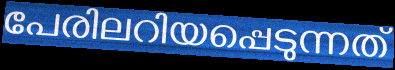
പേരിലറിയപ്പെടുന്നത്